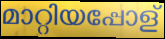
മാറ്റിയപ്പോള്